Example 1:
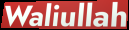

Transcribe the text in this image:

Waliullah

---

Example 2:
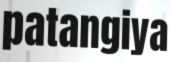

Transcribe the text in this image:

patangiya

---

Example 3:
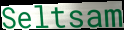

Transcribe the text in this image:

Seltsam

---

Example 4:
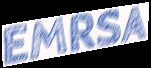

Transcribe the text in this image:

EMRSA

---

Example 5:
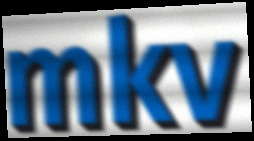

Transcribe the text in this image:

mkv